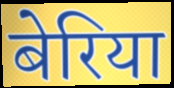
बेरिया